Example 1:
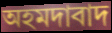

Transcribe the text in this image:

অহমদাবাদ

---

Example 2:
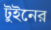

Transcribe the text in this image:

টুইনের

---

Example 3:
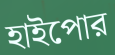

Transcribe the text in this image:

হাইপোর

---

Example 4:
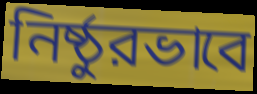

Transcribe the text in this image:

নিষ্ঠুরভাবে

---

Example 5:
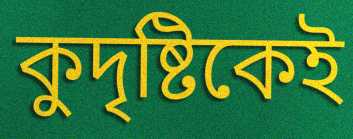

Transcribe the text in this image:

কুদৃষ্টিকেই